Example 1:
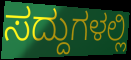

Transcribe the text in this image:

ಸದ್ದುಗಳಲ್ಲಿ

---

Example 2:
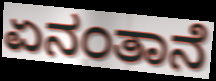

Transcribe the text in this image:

ಏನಂತಾನೆ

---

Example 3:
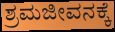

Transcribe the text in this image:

ಶ್ರಮಜೀವನಕ್ಕೆ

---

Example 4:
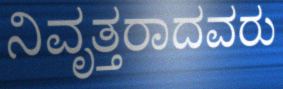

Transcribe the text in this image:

ನಿವೃತ್ತರಾದವರು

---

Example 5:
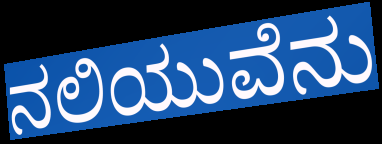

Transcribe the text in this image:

ನಲಿಯುವೆನು